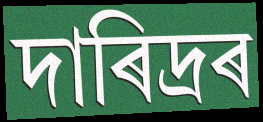
দাৰিদ্ৰৰ